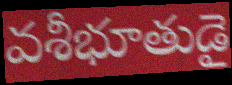
వశీభూతుడై